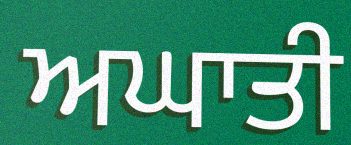
ਅਘਾਤੀ